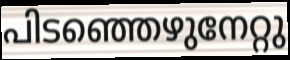
പിടഞ്ഞെഴുനേറ്റു